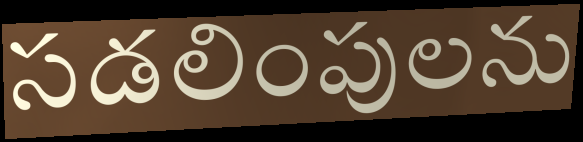
సడలింపులను